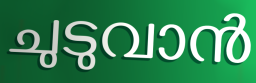
ചുടുവാൻ